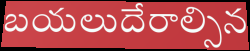
బయలుదేరాల్సిన